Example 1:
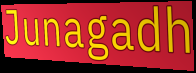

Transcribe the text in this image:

Junagadh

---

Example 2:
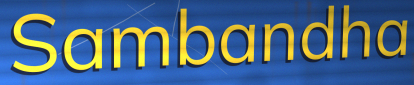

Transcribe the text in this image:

Sambandha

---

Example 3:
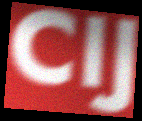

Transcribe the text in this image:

CIJ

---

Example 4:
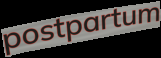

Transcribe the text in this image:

postpartum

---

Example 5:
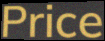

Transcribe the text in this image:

Price